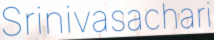
Srinivasachari